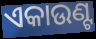
ଏକାଉଣ୍ଟ